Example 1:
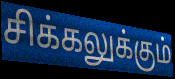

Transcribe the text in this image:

சிக்கலுக்கும்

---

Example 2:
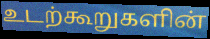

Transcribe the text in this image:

உடற்கூறுகளின்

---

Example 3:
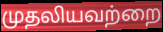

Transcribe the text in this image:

முதலியவற்றை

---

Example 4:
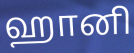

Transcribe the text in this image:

ஹானி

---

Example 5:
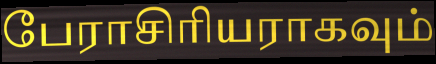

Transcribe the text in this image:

பேராசிரியராகவும்